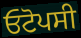
ਓਟੋਪਸੀ